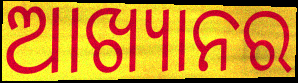
ଆଖ୍ୟାନର